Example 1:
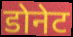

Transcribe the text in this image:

डोनेट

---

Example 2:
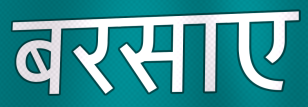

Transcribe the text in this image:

बरसाए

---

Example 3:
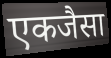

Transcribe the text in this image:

एकजैसा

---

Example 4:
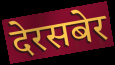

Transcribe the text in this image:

देरसबेर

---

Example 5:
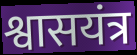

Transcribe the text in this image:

श्वासयंत्र